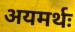
अयमर्थः